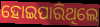
ହୋଇପାରିଥିଲେ